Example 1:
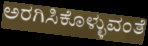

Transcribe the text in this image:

ಅರಗಿಸಿಕೊಳ್ಳುವಂತೆ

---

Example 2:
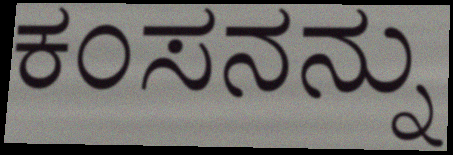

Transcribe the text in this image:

ಕಂಸನನ್ನು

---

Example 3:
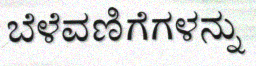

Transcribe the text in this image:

ಬೆಳೆವಣಿಗೆಗಳನ್ನು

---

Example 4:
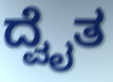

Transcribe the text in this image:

ದ್ವೈತ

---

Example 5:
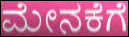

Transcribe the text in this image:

ಮೇನಕೆಗೆ